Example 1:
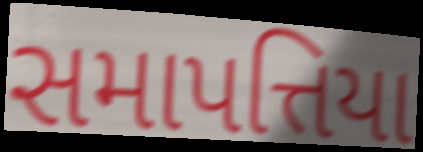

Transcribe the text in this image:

સમાપત્તિયા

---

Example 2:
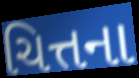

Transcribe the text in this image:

ચિત્તના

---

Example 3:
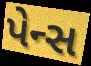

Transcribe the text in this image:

પેન્સ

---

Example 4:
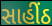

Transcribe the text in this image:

સાહીંઠ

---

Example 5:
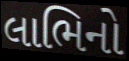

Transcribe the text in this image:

લાભિનો